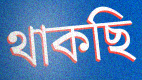
থাকছি